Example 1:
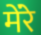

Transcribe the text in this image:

मेंरे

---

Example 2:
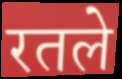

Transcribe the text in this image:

रतले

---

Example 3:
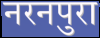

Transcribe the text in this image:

नरनपुरा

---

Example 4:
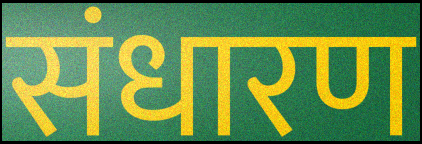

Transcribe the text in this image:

संधारण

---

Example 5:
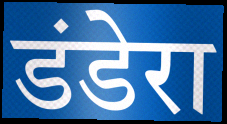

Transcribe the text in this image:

डंडेरा